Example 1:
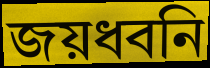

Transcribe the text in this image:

জয়ধবনি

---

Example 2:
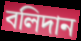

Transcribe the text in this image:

বলিদান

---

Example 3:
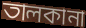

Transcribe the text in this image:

তালকানা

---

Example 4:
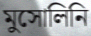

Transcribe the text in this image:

মুসোলিনি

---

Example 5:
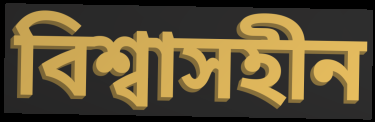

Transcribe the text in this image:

বিশ্বাসহীন